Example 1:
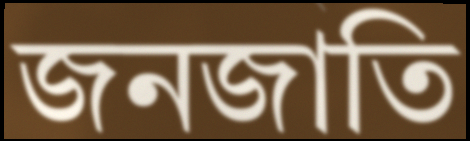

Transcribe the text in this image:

জনজাতি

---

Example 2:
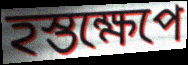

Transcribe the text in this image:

হস্তক্ষেপে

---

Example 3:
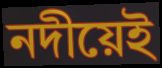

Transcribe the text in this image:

নদীয়েই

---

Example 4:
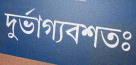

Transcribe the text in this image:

দুৰ্ভাগ্যবশতঃ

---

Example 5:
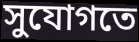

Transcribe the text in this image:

সুযোগতে